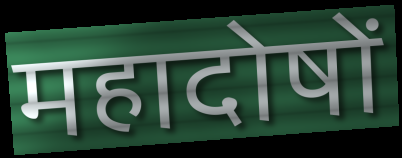
महादोषों